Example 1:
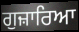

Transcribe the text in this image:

ਗੁਜ਼ਾਰਿਆ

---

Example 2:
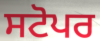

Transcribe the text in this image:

ਸਟੋਪਰ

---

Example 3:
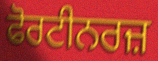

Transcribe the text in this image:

ਫੋਰਟੀਨਰਜ਼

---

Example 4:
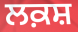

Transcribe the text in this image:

ਲਕ਼ਸ਼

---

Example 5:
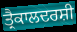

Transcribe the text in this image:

ਤ੍ਰੈਕਾਲਦਰਸ਼ੀ